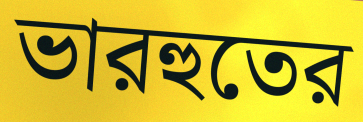
ভারহুতের